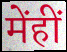
मेंहीं